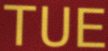
TUE